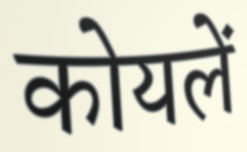
कोयलें